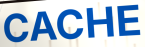
CACHE